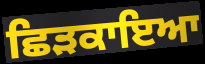
ਛਿੜਕਾਇਆ